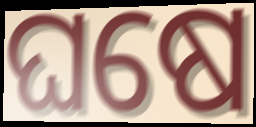
ଘଷେ